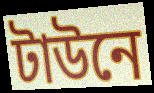
টাউনে